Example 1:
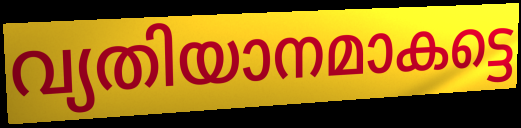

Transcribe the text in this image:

വ്യതിയാനമാകട്ടെ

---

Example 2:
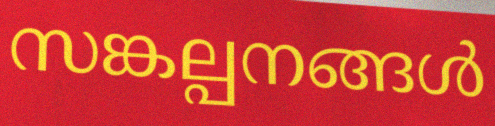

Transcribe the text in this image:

സങ്കല്പനങ്ങൾ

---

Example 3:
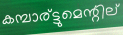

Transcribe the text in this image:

കമ്പാര്ട്ടുമെന്റില്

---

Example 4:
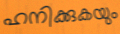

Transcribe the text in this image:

ഹനിക്കുകയും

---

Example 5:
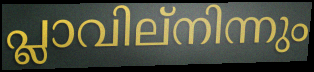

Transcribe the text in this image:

പ്ലാവില്നിന്നും